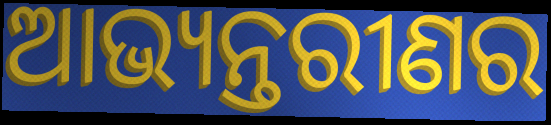
ଆଭ୍ୟନ୍ତରୀଣର